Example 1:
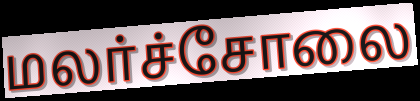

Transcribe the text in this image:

மலர்ச்சோலை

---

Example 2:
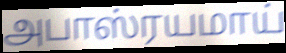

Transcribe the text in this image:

அபாஸ்ரயமாய்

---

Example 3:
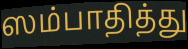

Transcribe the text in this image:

ஸம்பாதித்து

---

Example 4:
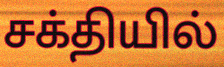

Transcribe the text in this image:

சக்தியில்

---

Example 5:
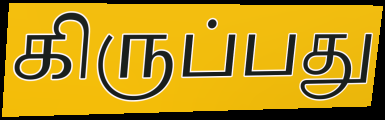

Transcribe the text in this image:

கிருப்பது